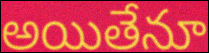
అయితేనూ